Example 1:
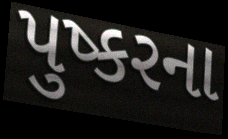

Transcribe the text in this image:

પુષ્કરના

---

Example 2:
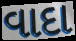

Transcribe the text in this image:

વાદા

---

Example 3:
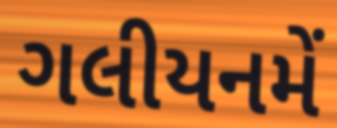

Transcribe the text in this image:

ગલીયનમેં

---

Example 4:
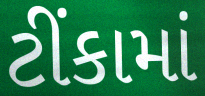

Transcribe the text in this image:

ટીંકામાં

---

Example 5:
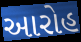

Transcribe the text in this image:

આરોહ